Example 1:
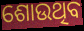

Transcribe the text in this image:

ଶୋଉଥିବ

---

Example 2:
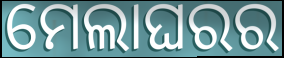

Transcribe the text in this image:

ମେଲାଘରର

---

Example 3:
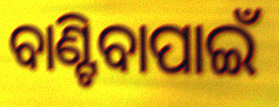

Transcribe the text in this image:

ବାଣ୍ଟିବାପାଇଁ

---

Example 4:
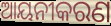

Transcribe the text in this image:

ଆୟନୀକରଣ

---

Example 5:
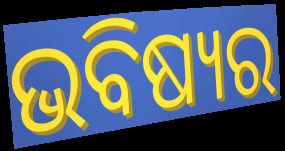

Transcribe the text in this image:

ଭବିଷ୍ୟର